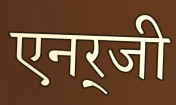
एनर्जी